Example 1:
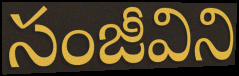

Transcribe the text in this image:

సంజీవిని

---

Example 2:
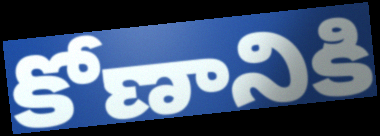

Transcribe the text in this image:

కోణానికి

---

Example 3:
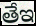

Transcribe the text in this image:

తేఇ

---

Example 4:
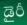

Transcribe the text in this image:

డైరీ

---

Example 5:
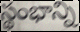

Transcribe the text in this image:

స్థంభాన్ని